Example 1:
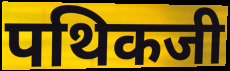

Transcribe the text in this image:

पथिकजी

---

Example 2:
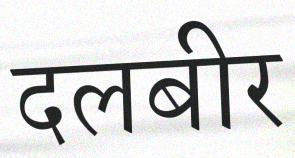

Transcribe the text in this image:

दलबीर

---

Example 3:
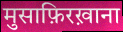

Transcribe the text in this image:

मुसाफ़िरख़ाना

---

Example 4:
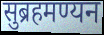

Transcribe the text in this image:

सुब्रहमण्यन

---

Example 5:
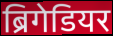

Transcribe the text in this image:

ब्रिगेडियर